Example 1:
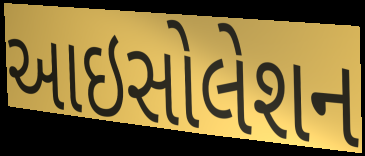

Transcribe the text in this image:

આઇસોલેશન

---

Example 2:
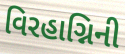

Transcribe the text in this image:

વિરહાગ્નિની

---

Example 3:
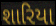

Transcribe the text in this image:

શારિયા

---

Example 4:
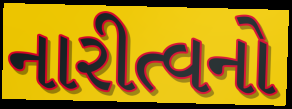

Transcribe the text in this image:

નારીત્વનો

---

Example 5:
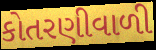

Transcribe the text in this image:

કોતરણીવાળી